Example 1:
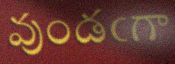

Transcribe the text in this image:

వుండఁగా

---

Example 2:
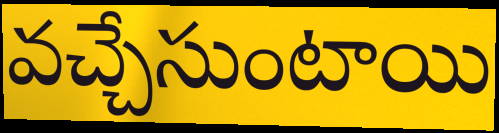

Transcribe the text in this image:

వచ్చేసుంటాయి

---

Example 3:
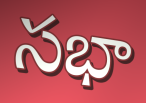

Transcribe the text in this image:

సభా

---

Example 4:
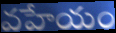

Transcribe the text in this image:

వహేయం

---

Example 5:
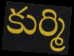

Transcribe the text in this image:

కుర్మి